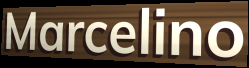
Marcelino